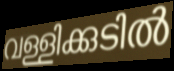
വള്ളിക്കുടിൽ